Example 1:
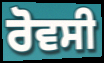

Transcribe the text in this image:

ਰੋਵਸੀ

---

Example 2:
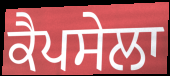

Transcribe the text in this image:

ਕੈਪਸੇਲਾ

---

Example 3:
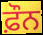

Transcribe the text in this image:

ਫ਼ੌਨ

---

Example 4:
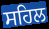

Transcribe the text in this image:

ਸਹਿਲ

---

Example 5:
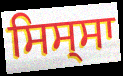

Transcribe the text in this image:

ਸਿਸ੍ਸਾ